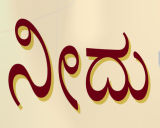
ನೀದು